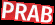
PRAB